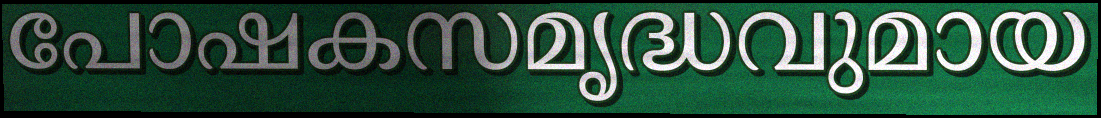
പോഷകസമൃദ്ധവുമായ